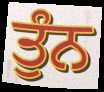
ਤੁੰਨ